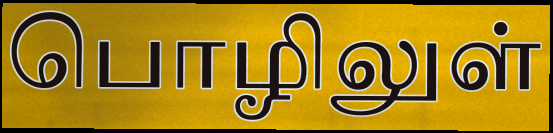
பொழிலுள்